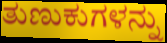
ತುಣುಕುಗಳನ್ನು